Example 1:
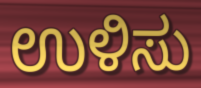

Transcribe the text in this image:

ಉಳಿಸು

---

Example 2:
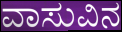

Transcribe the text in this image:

ವಾಸುವಿನ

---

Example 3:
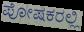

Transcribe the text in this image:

ಪೋಷಕರಲ್ಲಿ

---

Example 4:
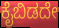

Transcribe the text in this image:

ಕೈಬಿಡದೇ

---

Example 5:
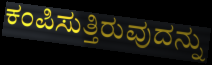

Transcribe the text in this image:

ಕಂಪಿಸುತ್ತಿರುವುದನ್ನು